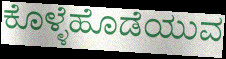
ಕೊಳ್ಳೆಹೊಡೆಯುವ